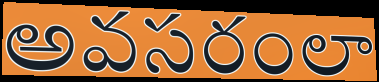
అవసరంలా